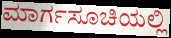
ಮಾರ್ಗಸೂಚಿಯಲ್ಲಿ